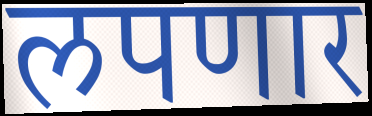
लपणार